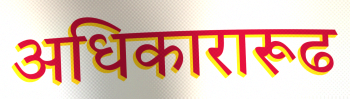
अधिकारारूढ